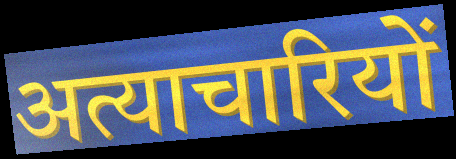
अत्याचारियों